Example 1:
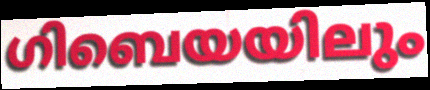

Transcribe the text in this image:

ഗിബെയയിലും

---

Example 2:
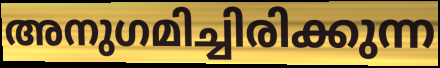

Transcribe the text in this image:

അനുഗമിച്ചിരിക്കുന്ന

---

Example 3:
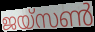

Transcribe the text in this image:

ജയ്സൺ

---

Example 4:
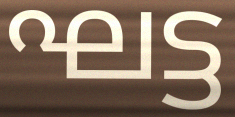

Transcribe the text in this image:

ഘട്ട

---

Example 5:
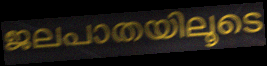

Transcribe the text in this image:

ജലപാതയിലൂടെ